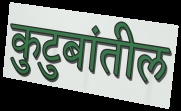
कुटुबांतील